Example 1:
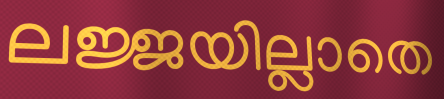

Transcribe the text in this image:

ലജ്ജയില്ലാതെ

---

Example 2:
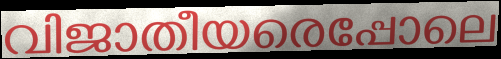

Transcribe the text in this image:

വിജാതീയരെപ്പോലെ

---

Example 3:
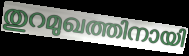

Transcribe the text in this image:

തുറമുഖത്തിനായി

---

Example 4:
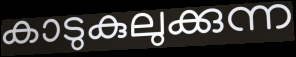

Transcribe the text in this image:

കാടുകുലുക്കുന്ന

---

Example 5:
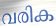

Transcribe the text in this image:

വരിക